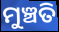
ମୁଞ୍ଚତି